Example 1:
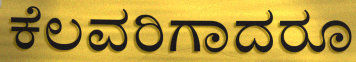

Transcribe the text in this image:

ಕೆಲವರಿಗಾದರೂ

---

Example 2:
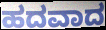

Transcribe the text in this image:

ಹದವಾದ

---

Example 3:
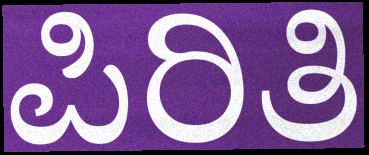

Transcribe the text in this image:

ಪಿರಿತಿ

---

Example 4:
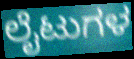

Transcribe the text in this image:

ಲೈಟುಗಳ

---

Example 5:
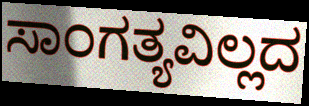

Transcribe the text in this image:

ಸಾಂಗತ್ಯವಿಲ್ಲದ